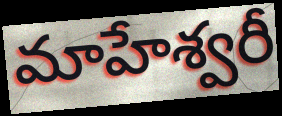
మాహేశ్వరీ